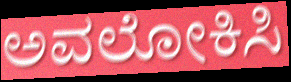
ಅವಲೋಕಿಸಿ